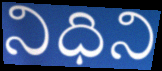
నిధిని